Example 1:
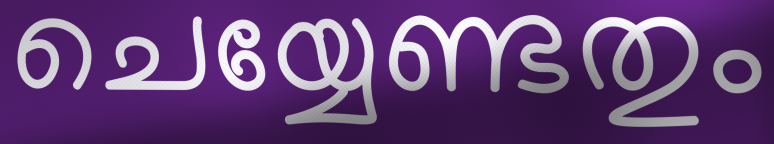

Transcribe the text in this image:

ചെയ്യേണ്ടതും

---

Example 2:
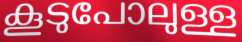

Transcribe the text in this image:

കൂടുപോലുള്ള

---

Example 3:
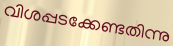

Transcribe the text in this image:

വിശപ്പടക്കേണ്ടതിന്നു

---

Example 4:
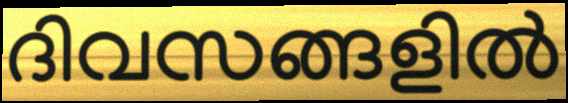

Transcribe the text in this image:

ദിവസങ്ങളിൽ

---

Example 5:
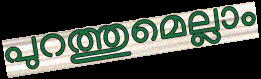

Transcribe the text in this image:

പുറത്തുമെല്ലാം